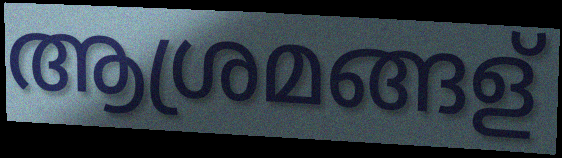
ആശ്രമങ്ങള്